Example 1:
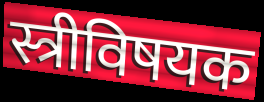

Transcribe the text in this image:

स्त्रीविषयक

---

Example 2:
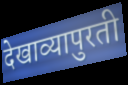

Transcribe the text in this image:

देखाव्यापुरती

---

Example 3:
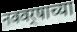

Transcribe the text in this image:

नववर्षाच्या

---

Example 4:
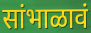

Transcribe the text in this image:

सांभाळावं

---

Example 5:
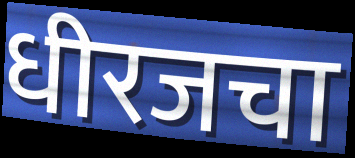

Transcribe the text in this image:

धीरजचा